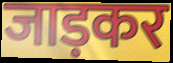
जाड़कर